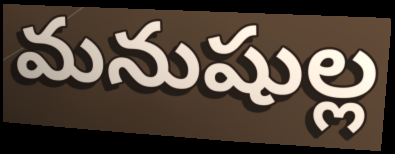
మనుషుల్ల